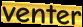
venter